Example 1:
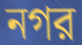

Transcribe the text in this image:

নগর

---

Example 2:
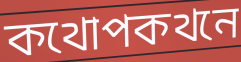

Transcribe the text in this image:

কথোপকথনে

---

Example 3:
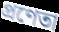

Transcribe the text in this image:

প্রণেতা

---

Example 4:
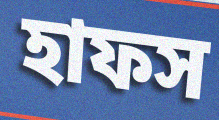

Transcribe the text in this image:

হাফস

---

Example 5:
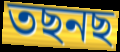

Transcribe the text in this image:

তছনছ